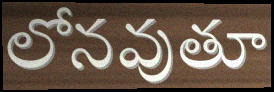
లోనవుతూ